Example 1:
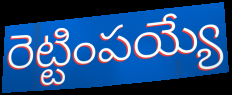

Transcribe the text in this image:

రెట్టింపయ్యే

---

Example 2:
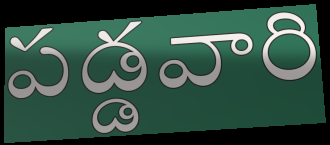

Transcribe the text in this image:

పడ్డవారి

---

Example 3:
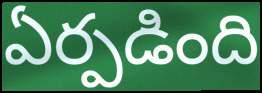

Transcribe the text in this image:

ఏర్పడింది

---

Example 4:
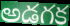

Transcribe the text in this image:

అడగక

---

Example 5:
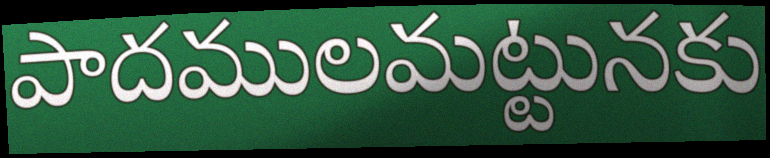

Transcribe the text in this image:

పాదములమట్టునకు